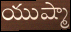
యుష్మా